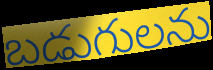
బడుగులను